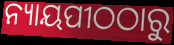
ନ୍ୟାୟପୀଠଠାରୁ